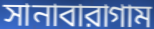
সানাবারাগাম